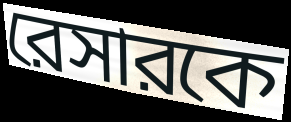
রেসারকে